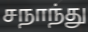
சநாந்து